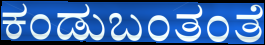
ಕಂಡುಬಂತಂತೆ